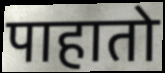
पाहातो